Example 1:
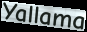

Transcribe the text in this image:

Yallama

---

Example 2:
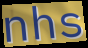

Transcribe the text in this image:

nhs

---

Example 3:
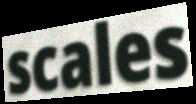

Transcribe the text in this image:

scales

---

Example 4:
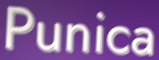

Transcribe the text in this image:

Punica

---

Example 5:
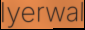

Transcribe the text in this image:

Iyerwal